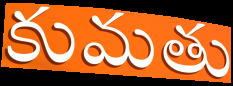
కుమతు